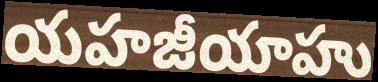
యహజీయాహు